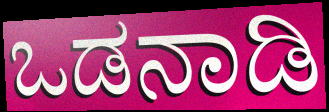
ಒಡನಾಡಿ